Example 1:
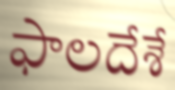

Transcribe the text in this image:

ఫాలదేశే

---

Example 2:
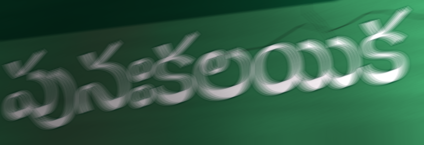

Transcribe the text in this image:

పునఃకలయిక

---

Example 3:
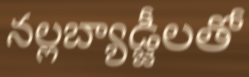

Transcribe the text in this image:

నల్లబ్యాడ్జీలతో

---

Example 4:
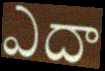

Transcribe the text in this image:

ఎదా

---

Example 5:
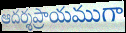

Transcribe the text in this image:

ఆదర్శప్రాయముగా